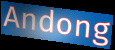
Andong